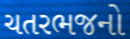
ચતરભજનો